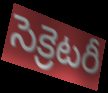
సెక్రెటరీ